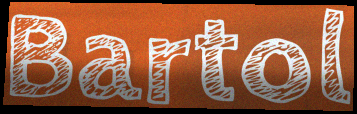
Bartol